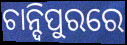
ଚାନ୍ଦିପୁରରେ